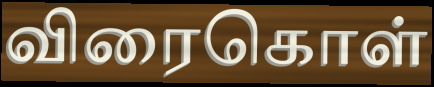
விரைகொள்